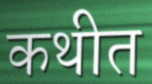
कथीत